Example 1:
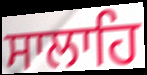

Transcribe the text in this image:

ਸਾਲਾਹਿ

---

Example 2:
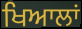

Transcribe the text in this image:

ਖਿਆਲਾਂ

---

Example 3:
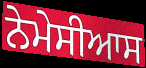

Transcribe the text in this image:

ਨੇਮੇਸੀਆਸ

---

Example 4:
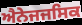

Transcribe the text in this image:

ਐਨੇਜਜਸਿਕ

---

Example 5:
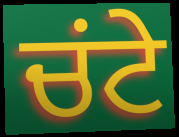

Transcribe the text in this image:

ਚਂਟੇ